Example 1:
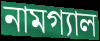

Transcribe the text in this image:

নামগ্যাল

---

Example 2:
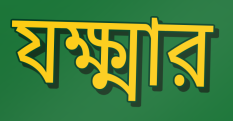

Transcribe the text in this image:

যক্ষ্মার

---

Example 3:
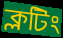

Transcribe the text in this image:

ক্লটিং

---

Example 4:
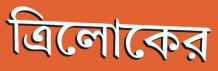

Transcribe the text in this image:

ত্রিলোকের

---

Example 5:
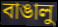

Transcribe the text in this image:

বাঙালু